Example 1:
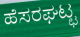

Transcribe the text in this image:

ಹೆಸರಘಟ್ಟ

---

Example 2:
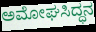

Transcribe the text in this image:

ಅಮೋಘಸಿದ್ಧನ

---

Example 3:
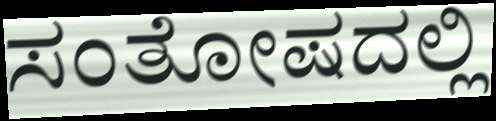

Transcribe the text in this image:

ಸಂತೋಷದಲ್ಲಿ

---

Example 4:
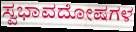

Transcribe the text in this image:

ಸ್ವಭಾವದೋಷಗಳ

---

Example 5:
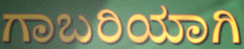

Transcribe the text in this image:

ಗಾಬರಿಯಾಗಿ